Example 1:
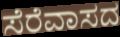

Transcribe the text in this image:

ಸೆರೆವಾಸದ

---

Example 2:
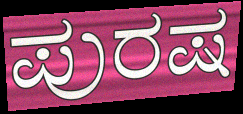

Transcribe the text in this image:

ಪುರಷ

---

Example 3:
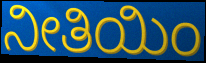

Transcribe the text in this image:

ನೀತಿಯಿಂ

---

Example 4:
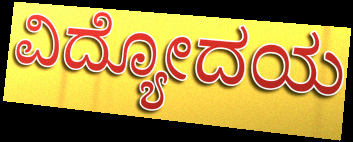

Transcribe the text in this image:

ವಿದ್ಯೋದಯ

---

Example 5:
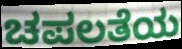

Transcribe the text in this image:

ಚಪಲತೆಯ